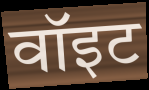
वॉइट